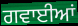
ਗਵਾਈਆਂ